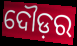
ଦୌଡ଼ର